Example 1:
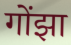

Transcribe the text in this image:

गोंझा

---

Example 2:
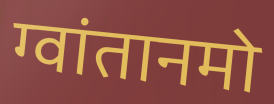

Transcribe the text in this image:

ग्वांतानमो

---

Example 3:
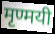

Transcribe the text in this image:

मृण्मयी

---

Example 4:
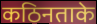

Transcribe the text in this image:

कठिनताके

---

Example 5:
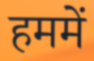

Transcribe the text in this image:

हममें